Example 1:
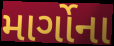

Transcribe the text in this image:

માર્ગોના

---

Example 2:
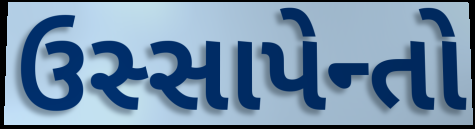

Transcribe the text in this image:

ઉસ્સાપેન્તો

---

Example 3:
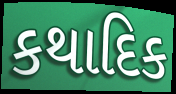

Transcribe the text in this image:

કથાદિક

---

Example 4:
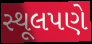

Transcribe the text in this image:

સ્થૂલપણે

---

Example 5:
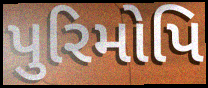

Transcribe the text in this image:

પુરિમોપિ